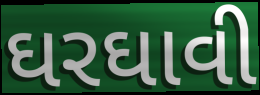
ઘરઘાવી